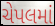
ચેપલમાં